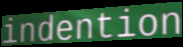
indention